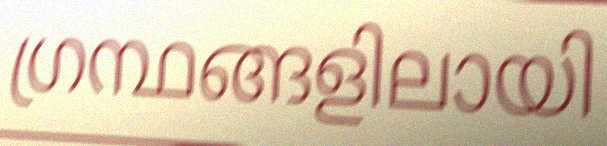
ഗ്രന്ഥങ്ങളിലായി